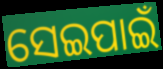
ସେଇପାଇଁ